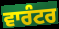
ਵਾਰੰਟਰ